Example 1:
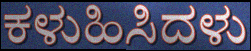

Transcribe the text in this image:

ಕಳುಹಿಸಿದಳು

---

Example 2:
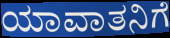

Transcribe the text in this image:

ಯಾವಾತನಿಗೆ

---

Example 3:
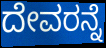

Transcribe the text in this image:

ದೇವರನ್ನೆ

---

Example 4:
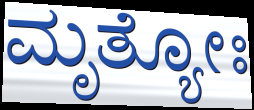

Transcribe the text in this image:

ಮೃತ್ಯೋಃ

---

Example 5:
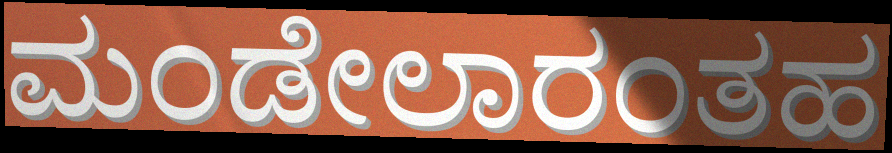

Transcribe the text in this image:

ಮಂಡೇಲಾರಂತಹ